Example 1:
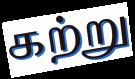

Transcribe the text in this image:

கற்று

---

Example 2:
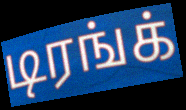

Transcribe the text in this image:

டிரங்க்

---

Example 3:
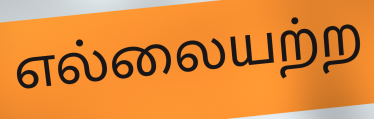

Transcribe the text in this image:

எல்லையற்ற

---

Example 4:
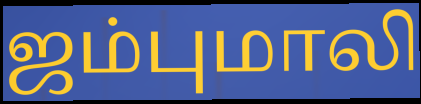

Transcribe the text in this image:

ஜம்புமாலி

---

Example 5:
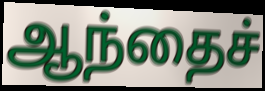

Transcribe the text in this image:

ஆந்தைச்